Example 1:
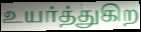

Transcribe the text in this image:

உயர்த்துகிற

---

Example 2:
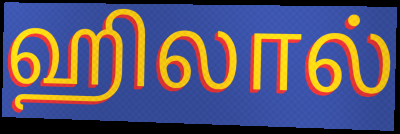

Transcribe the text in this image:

ஹிலால்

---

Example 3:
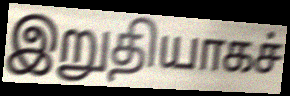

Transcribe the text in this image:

இறுதியாகச்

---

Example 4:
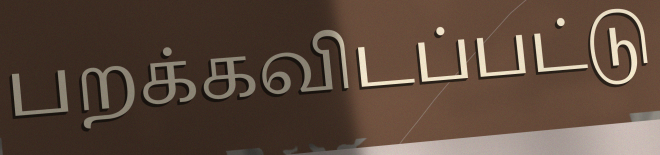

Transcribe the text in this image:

பறக்கவிடப்பட்டு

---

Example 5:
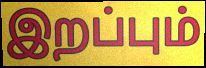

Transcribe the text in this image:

இறப்பும்